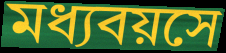
মধ্যবয়সে